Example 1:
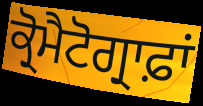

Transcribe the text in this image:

ਕ੍ਰੋਮੈਟੋਗ੍ਰਾਫ਼ਾਂ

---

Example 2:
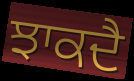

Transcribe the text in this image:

ਝਾਕਦੈ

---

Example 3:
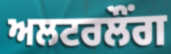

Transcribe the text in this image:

ਅਲਟਰਲੌਂਗ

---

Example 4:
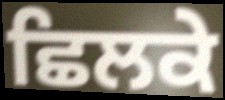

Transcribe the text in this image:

ਛਿਲਕੇ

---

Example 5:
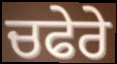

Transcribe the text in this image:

ਚਫੇਰੇ